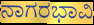
ನಾಗರಭಾವಿ